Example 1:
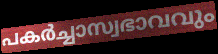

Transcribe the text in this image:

പകർച്ചാസ്വഭാവവും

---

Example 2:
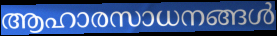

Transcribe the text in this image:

ആഹാരസാധനങ്ങൾ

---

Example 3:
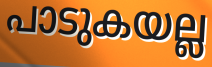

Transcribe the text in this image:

പാടുകയല്ല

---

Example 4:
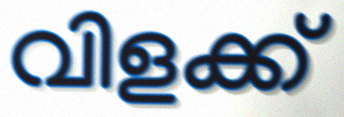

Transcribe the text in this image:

വിളക്ക്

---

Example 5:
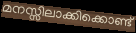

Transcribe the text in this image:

മനസ്സിലാക്കിക്കൊണ്ട്